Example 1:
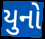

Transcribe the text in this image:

યુનો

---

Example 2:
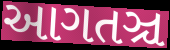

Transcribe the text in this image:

આગતઞ્ચ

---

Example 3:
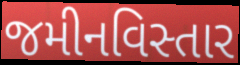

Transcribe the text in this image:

જમીનવિસ્તાર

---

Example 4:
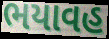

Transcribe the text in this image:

ભયાવહ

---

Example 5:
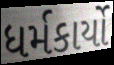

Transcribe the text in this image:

ધર્મકાર્યો